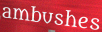
ambushes